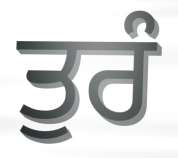
ਤੁਰੰ